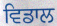
ਵਿਡਾਲ